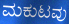
ಮಕುಟವು